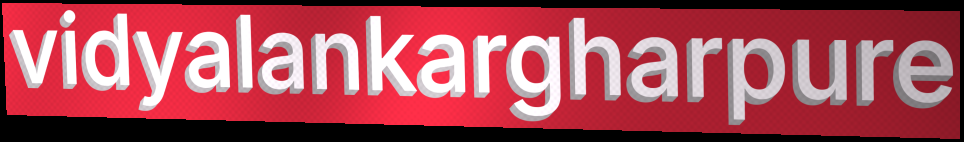
vidyalankargharpure